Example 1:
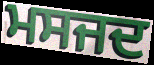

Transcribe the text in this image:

ਮਸਜਦ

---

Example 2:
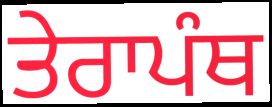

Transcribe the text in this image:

ਤੇਰਾਪੰਥ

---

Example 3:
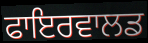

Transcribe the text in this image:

ਫਾਇਰਵਾਲਡ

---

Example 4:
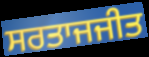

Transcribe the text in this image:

ਸਰਤਾਜਜੀਤ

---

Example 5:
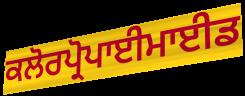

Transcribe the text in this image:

ਕਲੋਰਪ੍ਰੋਪਾਈਮਾਈਡ